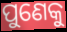
ପୁଣେକୁ